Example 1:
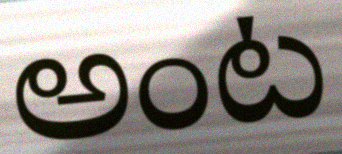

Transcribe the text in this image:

అంట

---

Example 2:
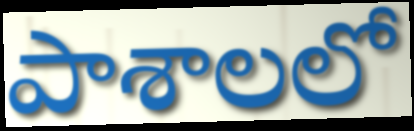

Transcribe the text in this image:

పాశాలలో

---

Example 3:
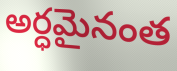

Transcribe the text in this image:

అర్ధమైనంత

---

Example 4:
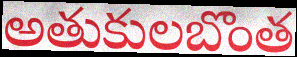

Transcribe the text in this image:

అతుకులబొంత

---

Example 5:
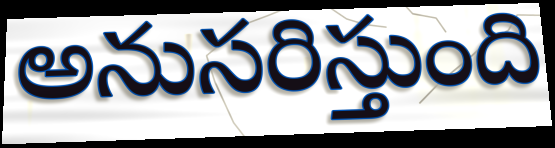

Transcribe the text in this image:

అనుసరిస్తుంది